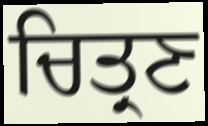
ਚਿਤ੍ਰਣ